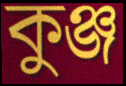
কুঞ্জ